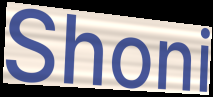
Shoni